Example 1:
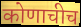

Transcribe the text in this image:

कोणाचीच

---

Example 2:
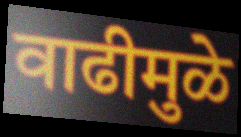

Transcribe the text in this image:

वाढीमुळे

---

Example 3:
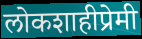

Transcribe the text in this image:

लोकशाहीप्रेमी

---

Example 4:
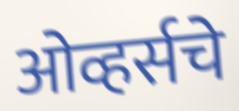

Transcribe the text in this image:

ओव्हर्सचे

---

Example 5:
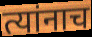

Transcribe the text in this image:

त्यांनाच